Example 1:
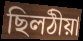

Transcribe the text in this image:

ছিলঠীয়া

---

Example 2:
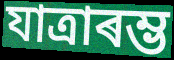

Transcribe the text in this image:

যাত্ৰাৰম্ভ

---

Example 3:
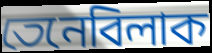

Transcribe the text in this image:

তেনেবিলাক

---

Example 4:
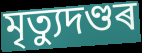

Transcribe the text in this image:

মৃত্যুদণ্ডৰ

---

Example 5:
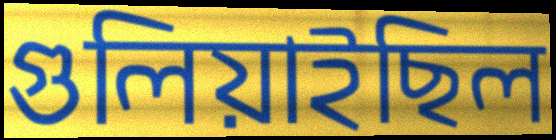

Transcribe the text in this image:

গুলিয়াইছিল